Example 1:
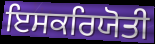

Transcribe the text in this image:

ਇਸਕਰਿਯੋਤੀ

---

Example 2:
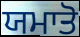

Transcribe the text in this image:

ਯਮਾਤੋ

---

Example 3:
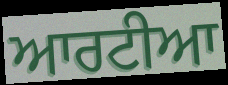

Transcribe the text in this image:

ਆਰਟੀਆ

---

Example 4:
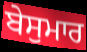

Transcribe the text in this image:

ਬੇਸੁਮਾਰ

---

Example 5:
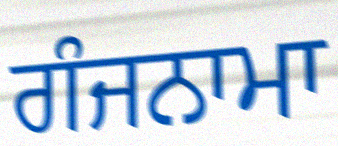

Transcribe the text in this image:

ਗੰਜਨਾਮਾ